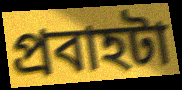
প্রবাহটা